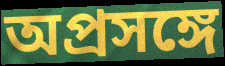
অপ্রসঙ্গে